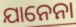
ଯାନେନା